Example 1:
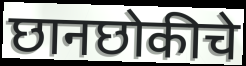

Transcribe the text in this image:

छानछोकीचे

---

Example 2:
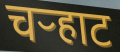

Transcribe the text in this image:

चऱ्हाट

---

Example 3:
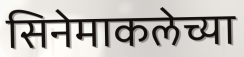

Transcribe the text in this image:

सिनेमाकलेच्या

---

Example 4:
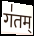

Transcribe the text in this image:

ग॑तम्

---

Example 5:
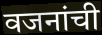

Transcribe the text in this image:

वजनांची